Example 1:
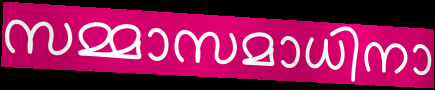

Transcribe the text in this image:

സമ്മാസമാധിനാ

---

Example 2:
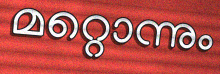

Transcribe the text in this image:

മറ്റൊന്നും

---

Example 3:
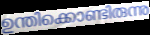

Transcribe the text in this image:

ഉന്തിക്കൊണ്ടിരുന്നു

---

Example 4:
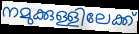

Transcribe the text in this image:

നമുക്കുള്ളിലേക്ക്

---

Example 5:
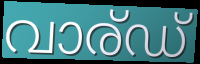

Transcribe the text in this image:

വാര്ഡ്